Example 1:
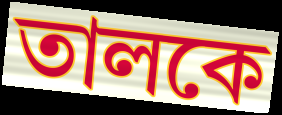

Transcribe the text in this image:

তালকে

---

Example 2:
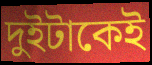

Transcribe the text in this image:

দুইটাকেই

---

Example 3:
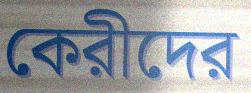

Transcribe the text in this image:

কেরীদের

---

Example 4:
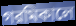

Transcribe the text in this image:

গরমিকালে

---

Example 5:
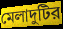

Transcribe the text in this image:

মেলাদুটির